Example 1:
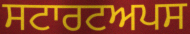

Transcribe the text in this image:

ਸਟਾਰਟਅਪਸ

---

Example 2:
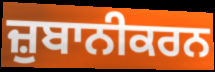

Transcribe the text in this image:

ਜ਼ੁਬਾਨੀਕਰਨ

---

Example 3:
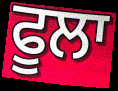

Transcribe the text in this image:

ਫੂਲਾ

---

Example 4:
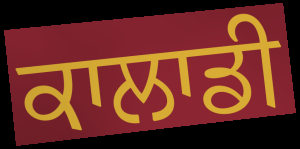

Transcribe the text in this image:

ਕਾਲਾਡੀ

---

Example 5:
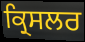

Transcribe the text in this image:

ਕ੍ਰਿਸਲਰ